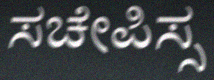
ಸಚೇಪಿಸ್ಸ